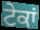
ਟੇਕਾਂ